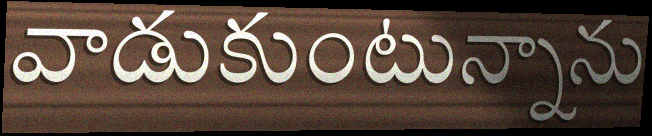
వాడుకుంటున్నాను